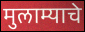
मुलाम्याचे